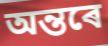
অন্তৰে